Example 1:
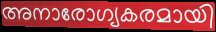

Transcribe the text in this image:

അനാരോഗ്യകരമായി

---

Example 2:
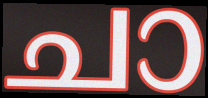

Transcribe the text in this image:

ചാ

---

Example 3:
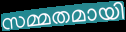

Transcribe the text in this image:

സമ്മതമായി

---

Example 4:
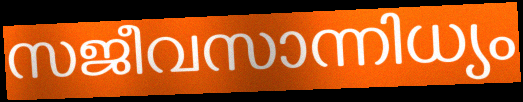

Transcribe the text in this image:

സജീവസാന്നിധ്യം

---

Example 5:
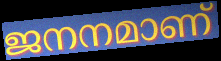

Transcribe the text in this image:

ജനനമാണ്